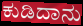
ಕುಡಿದಾನು